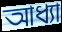
আধ্যা